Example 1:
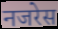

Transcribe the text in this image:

नजरेस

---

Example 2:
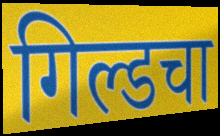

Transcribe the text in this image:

गिल्डचा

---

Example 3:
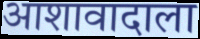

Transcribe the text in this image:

आशावादाला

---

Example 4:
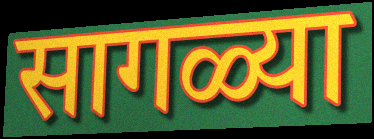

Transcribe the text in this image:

सागळ्या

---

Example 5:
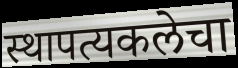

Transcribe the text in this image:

स्थापत्यकलेचा